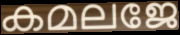
കമലജേ